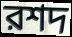
রশদ